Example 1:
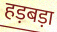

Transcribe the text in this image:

हड़बड़ा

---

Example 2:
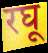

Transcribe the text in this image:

रघू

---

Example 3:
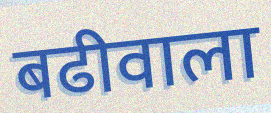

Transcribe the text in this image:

बढीवाला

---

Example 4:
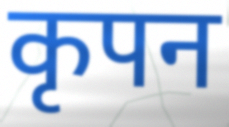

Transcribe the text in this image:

कृपन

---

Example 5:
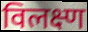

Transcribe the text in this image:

विलक्ष्ण